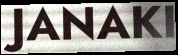
JANAKI